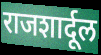
राजशार्दूल